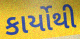
કાર્યોથી